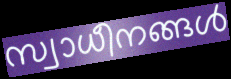
സ്വാധീനങ്ങൾ